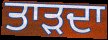
ਤਾੜਦਾ